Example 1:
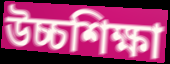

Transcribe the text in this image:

উচ্চশিক্ষা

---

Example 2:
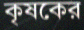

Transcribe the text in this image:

কৃষকের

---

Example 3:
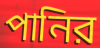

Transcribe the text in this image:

পানির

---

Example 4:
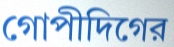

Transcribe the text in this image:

গোপীদিগের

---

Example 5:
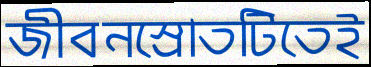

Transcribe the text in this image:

জীবনস্রোতটিতেই